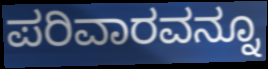
ಪರಿವಾರವನ್ನೂ